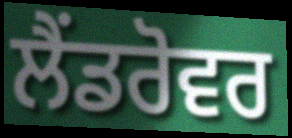
ਲੈਂਡਰੋਵਰ